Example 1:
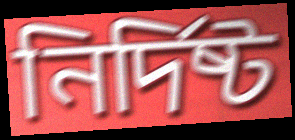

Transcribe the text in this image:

নির্দিষ্ট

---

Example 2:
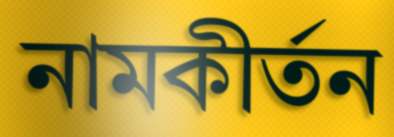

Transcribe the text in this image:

নামকীর্তন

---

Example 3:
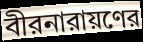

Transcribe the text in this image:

বীরনারায়ণের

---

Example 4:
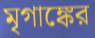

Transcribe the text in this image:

মৃগাঙ্কের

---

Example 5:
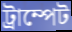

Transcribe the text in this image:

ট্রাম্পেট